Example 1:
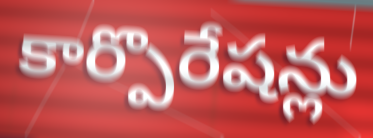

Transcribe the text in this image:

కార్పొరేషన్లు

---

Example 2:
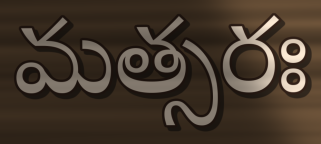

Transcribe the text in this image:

మత్సరః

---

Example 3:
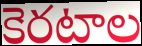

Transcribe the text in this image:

కెరటాల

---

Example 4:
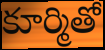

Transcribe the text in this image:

కూర్మితో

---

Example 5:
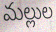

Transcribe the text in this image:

మల్లుల